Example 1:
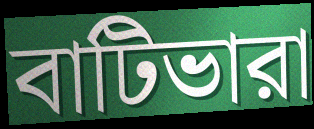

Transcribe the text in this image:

বাটিভারা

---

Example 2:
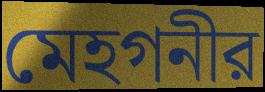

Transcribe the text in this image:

মেহগনীর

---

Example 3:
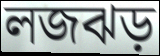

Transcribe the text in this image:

লজঝড়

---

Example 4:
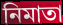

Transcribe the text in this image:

নিমাতা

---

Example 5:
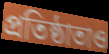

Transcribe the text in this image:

প্রতিষ্ঠাতাও